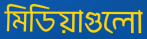
মিডিয়াগুলো